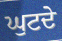
ਘੁਟਦੇ